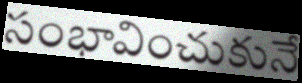
సంభావించుకునే